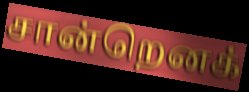
சான்றெனக்